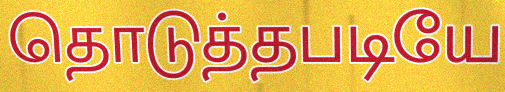
தொடுத்தபடியே